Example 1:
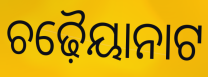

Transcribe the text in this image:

ଚଢ଼ୈୟାନାଟ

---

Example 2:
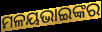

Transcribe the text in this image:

ମଳୟଭାଇଙ୍କର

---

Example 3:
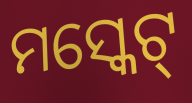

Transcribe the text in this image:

ମସ୍କେଟ୍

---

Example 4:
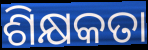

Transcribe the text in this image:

ଶିକ୍ଷକତା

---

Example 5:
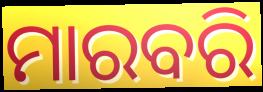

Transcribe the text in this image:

ମାରବରି